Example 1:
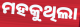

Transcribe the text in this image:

ମହକୁଥିଲା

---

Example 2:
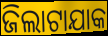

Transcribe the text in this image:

ଜିଲାଟାଯାକ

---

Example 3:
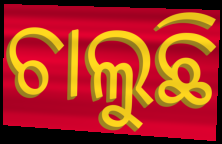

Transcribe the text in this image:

ଚାଲୁଛି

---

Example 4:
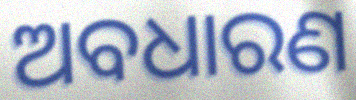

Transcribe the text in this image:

ଅବଧାରଣ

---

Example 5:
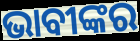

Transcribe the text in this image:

ଭାବୀଙ୍କର